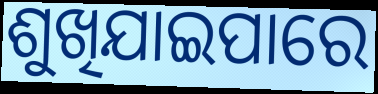
ଶୁଖିଯାଇପାରେ